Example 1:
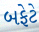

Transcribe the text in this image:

બફેટે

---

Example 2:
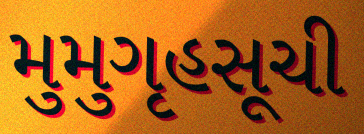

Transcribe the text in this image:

મુમુગૃહસૂચી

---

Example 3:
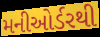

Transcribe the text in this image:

મનીઓર્ડરથી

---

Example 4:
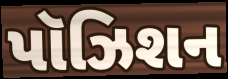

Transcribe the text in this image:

પૉઝિશન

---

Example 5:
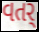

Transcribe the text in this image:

વતર્